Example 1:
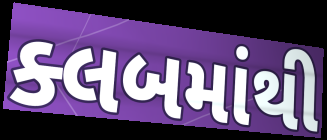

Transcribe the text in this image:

ક્લબમાંથી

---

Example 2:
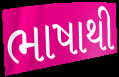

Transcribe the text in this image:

ભાષાથી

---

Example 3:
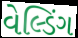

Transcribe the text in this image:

વેલ્ડિંગ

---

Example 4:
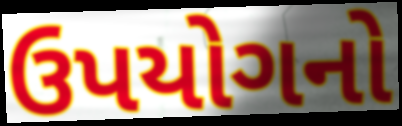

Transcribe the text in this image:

ઉપયોગનો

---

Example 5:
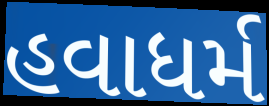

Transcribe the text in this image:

હવાધર્મ